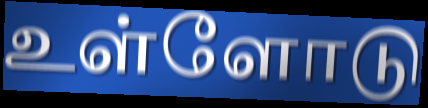
உள்ளோடு